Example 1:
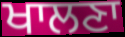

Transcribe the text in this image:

ਖਾਲਣਾ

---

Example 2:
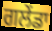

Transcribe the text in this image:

ਗਲੇਂਡਾ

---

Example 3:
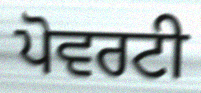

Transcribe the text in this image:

ਪੋਵਰਟੀ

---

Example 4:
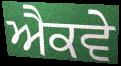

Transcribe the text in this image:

ਐਕਵੇ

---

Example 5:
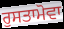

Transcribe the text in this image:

ਰੁਸਤਾਮੋਵਾ